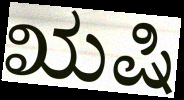
ಋಷಿ